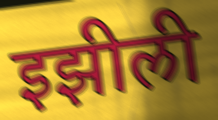
इझीली